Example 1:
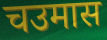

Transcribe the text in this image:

चउमास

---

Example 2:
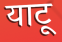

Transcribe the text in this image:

याटू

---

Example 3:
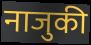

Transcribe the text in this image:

नाजुकी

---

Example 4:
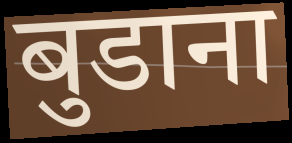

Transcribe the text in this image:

बुडाना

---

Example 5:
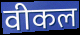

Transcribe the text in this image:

वीकल